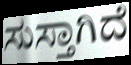
ಸುಸ್ತಾಗಿದೆ